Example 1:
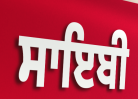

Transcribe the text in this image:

ਸਾਇਬੀ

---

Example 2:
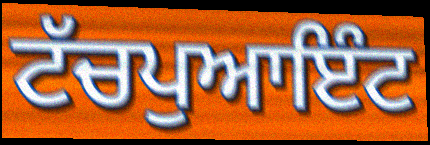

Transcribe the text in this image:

ਟੱਚਪੁਆਇੰਟ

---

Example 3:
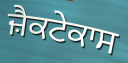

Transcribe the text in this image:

ਜ਼ੈਕਟੇਕਾਸ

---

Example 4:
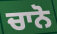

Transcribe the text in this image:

ਚਾਨੋ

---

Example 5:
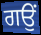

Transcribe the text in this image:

ਗਉਂ